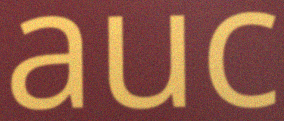
auc